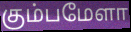
கும்பமேளா